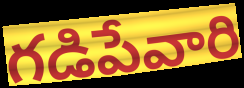
గడిపేవారి